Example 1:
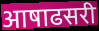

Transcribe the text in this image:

आषाढसरी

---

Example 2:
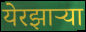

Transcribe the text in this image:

येरझार्‍या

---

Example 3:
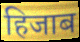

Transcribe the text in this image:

हिजाब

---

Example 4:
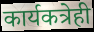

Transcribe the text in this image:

कार्यकत्रेही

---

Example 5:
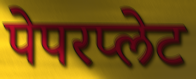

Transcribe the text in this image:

पेपरप्लेट